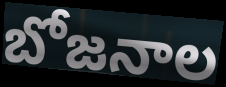
బోజనాల